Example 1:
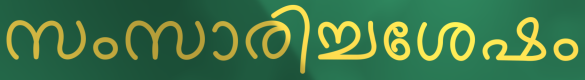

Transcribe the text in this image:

സംസാരിച്ചശേഷം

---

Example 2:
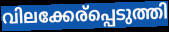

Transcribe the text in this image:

വിലക്കേര്പ്പെടുത്തി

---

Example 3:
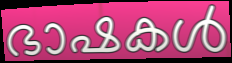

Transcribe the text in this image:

ഭാഷകൾ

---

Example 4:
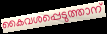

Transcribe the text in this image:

കൈവശപ്പെടുത്താന്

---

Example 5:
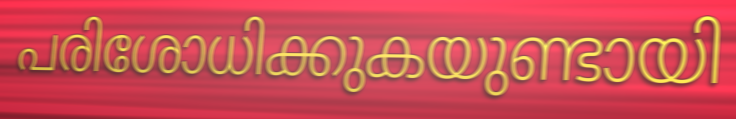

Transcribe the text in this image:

പരിശോധിക്കുകയുണ്ടായി